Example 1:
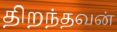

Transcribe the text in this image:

திறந்தவன்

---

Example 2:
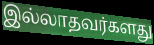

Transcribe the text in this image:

இல்லாதவர்களது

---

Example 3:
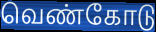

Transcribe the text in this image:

வெண்கோடு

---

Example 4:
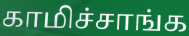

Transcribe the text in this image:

காமிச்சாங்க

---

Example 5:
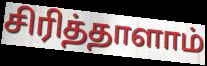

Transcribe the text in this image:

சிரித்தாளாம்